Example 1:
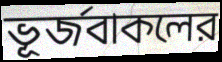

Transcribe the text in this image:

ভূর্জবাকলের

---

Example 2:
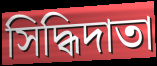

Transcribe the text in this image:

সিদ্ধিদাতা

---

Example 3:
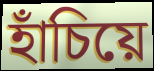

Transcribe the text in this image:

হাঁচিয়ে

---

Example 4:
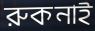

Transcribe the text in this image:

রুকনাই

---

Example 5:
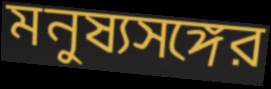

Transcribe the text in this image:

মনুষ্যসঙ্গের